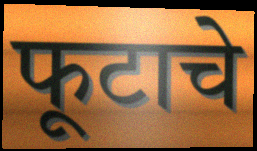
फूटाचे